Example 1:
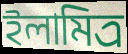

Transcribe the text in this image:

ইলামিত্র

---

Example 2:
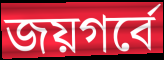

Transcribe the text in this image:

জয়গর্বে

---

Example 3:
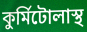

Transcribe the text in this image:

কুর্মিটোলাস্থ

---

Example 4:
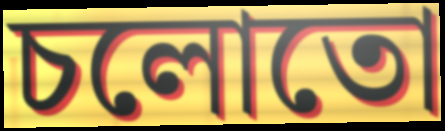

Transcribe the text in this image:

চলোতো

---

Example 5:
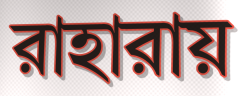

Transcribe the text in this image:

রাহারায়